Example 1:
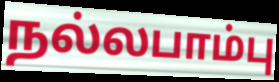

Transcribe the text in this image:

நல்லபாம்பு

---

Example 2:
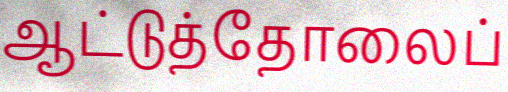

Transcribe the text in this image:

ஆட்டுத்தோலைப்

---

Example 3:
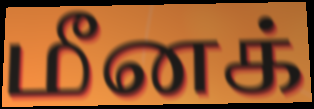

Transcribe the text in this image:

மீனக்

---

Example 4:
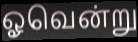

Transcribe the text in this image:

ஓவென்று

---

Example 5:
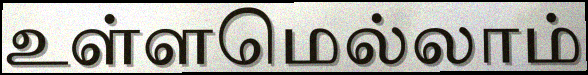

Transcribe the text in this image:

உள்ளமெல்லாம்